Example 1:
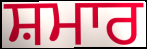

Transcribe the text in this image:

ਸ਼ਮਾਰ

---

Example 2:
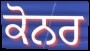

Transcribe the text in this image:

ਕੋਨਰ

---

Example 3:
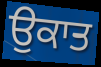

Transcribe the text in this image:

ਉਕਾਤ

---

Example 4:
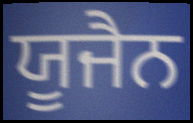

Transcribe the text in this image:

ਯੂਜੈਨ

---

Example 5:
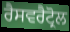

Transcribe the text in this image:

ਰੈਸਵਰੈਟ੍ਰੋਲ